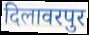
दिलावरपुर